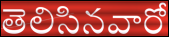
తెలిసినవారో